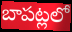
బాపట్లలో